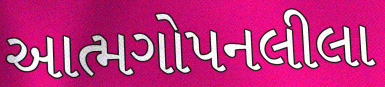
આત્મગોપનલીલા